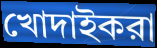
খোদাইকরা